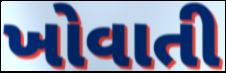
ખોવાતી